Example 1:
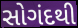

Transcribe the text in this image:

સોગંદથી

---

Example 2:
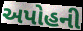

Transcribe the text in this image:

અપોહની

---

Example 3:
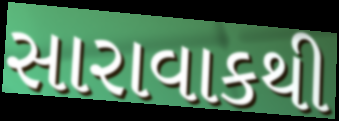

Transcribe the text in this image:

સારાવાકથી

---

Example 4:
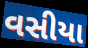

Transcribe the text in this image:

વસીયા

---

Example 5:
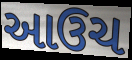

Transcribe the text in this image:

આઉચ